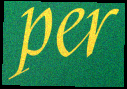
per